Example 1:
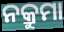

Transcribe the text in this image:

ନକ୍ରୁମା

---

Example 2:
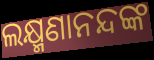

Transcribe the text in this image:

ଲକ୍ଷ୍ମଣାନନ୍ଦଙ୍କ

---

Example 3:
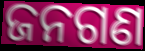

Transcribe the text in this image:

ଜନଗଣ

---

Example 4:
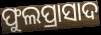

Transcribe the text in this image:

ଫୁଲପ୍ରାସାଦ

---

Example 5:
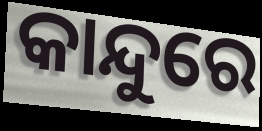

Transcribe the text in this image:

କାନ୍ଦୁରେ